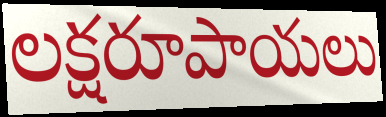
లక్షరూపాయలు